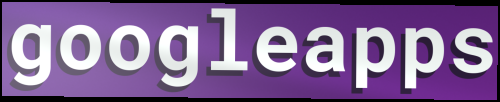
googleapps